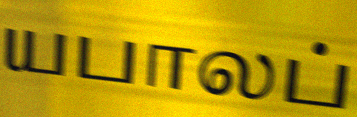
யபாலப்